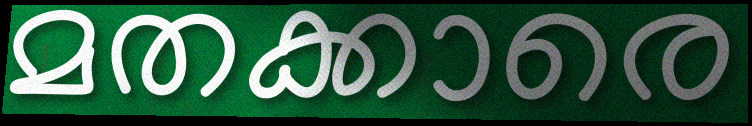
മതക്കാരെ